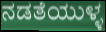
ನಡತೆಯುಳ್ಳ